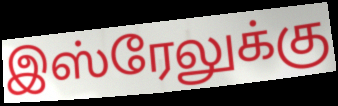
இஸ்ரேலுக்கு